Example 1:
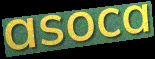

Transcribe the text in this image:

asoca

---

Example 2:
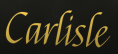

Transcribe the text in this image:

Carlisle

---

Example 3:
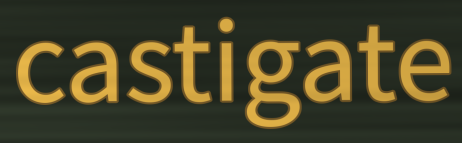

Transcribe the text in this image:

castigate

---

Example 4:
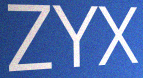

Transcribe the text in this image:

ZYX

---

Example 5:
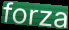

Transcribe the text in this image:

forza